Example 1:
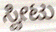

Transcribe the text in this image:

ಸ್ವೀಟು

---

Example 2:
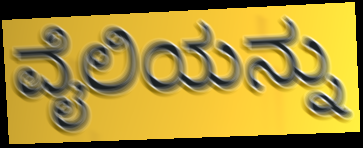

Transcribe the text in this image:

ವೈಲಿಯನ್ನು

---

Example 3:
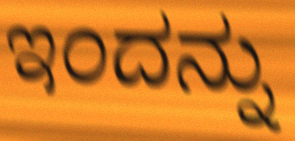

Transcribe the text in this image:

ಇಂದನ್ನು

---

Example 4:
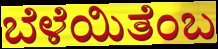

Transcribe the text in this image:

ಬೆಳೆಯಿತೆಂಬ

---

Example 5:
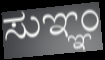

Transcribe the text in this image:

ಸುಞ್ಞಂ